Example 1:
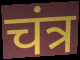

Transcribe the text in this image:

चंत्र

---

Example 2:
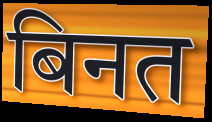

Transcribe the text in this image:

बिनत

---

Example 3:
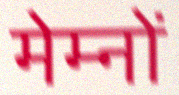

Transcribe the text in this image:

मेम्नों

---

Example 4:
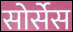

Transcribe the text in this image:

सोर्सेस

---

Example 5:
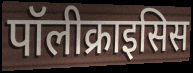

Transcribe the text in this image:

पॉलीक्राइसिस